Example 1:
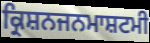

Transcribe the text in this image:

ਕ੍ਰਿਸ਼ਨਜਨਮਾਸ਼ਟਮੀ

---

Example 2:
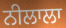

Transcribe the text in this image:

ਨੀਲਾਲਾ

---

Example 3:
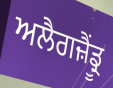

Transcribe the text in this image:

ਅਲੈਗਜ਼ੈਂਡ੍ਰੂ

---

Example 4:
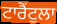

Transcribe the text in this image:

ਟਾਰੈਂਟੁਲਾ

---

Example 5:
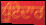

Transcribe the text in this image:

ਧੂੰਏਦਾਰ